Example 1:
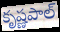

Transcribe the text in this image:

కృష్ణపాల్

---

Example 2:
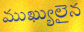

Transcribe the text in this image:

ముఖ్యులైన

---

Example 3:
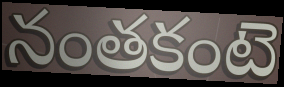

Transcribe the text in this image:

నంతకంటె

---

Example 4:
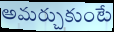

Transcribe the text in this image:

అమర్చుకుంటే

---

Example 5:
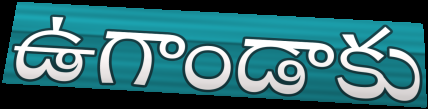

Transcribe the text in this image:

ఉగాండాకు